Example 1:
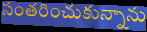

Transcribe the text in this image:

సంతరించుకున్నాను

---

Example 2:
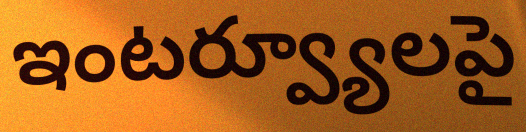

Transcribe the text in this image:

ఇంటర్వ్యూలపై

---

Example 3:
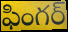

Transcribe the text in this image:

ఫింగర్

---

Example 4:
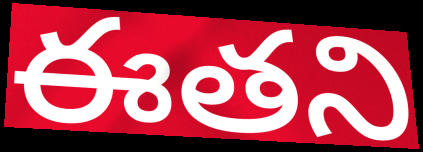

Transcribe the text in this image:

ఈతని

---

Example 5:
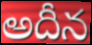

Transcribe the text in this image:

అదీన